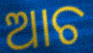
ଆଚ